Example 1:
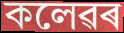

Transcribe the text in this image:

কলেৱৰ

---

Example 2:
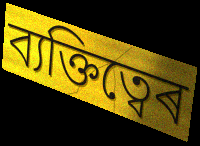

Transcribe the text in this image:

ব্যক্তিত্বেৰ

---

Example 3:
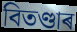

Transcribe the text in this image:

বিতণ্ডাৰ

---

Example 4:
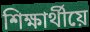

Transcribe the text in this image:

শিক্ষাৰ্থীয়ে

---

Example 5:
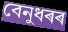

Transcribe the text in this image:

বেনুধৰৰ